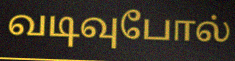
வடிவுபோல்